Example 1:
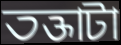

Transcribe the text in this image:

তক্তাটা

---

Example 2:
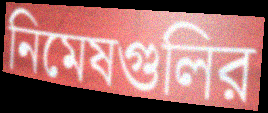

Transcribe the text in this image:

নিমেষগুলির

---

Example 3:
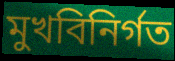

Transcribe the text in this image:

মুখবিনির্গত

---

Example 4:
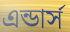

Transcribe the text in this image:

এন্ডার্স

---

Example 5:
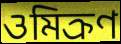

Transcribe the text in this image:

ওমিক্রণ